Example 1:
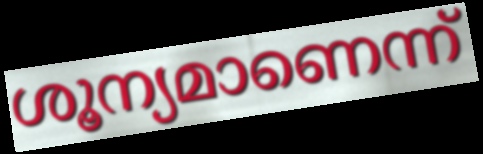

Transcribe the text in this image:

ശൂന്യമാണെന്ന്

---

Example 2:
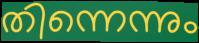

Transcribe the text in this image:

തിന്നെന്നും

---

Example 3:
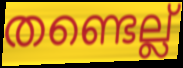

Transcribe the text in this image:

തണ്ടെല്ല്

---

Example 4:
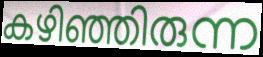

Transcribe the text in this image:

കഴിഞ്ഞിരുന്ന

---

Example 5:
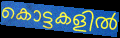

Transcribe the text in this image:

കൊട്ടകളിൽ